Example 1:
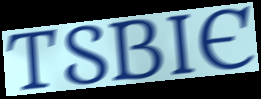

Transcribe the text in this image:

TSBIE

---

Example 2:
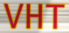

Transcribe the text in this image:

VHT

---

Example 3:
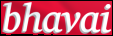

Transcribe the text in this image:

bhavai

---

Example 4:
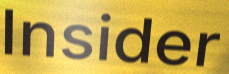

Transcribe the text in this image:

Insider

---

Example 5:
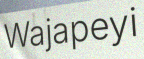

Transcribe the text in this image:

Wajapeyi